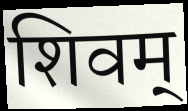
शिवम्